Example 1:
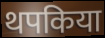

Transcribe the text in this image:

थपकिया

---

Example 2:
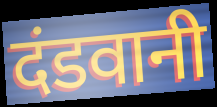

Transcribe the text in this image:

दंडवानी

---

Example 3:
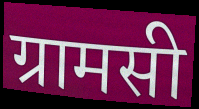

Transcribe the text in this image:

ग्रामसी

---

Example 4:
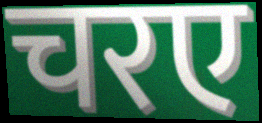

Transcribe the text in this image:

चरए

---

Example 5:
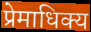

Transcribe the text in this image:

प्रेमाधिक्य